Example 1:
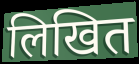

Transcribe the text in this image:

लिखित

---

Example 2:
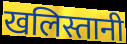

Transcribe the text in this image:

खलिस्तानी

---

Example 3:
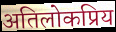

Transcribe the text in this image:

अतिलोकप्रिय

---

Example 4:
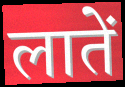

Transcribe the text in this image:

लातें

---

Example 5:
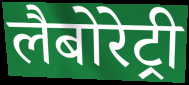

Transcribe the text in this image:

लैबोरेट्री